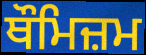
ਥੌਮਿਜ਼ਮ